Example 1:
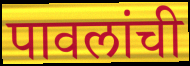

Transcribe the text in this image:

पावलांची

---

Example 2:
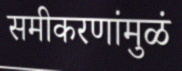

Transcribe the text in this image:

समीकरणांमुळं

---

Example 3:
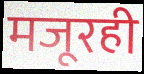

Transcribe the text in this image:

मजूरही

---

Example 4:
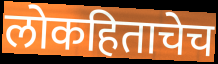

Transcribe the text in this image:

लोकहिताचेच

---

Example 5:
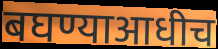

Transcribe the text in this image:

बघण्याआधीच